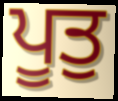
ਪੂਤੁ